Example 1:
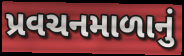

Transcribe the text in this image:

પ્રવચનમાળાનું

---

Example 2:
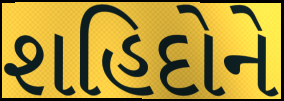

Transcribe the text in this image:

શહિદોને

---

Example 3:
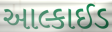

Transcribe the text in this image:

આલ્કાઈડ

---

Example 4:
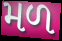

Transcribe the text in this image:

મળ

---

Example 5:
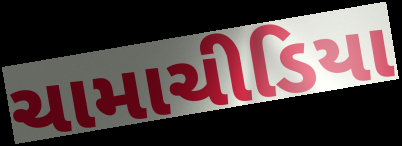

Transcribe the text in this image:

ચામાચીડિયા